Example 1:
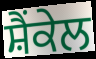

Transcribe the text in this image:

ਸ਼ੈਂਕੇਲ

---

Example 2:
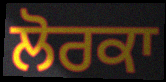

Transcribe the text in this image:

ਲੋਰਕਾ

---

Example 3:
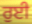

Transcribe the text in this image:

ਰੁਈ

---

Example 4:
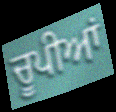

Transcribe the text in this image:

ਚੂਪੀਆਂ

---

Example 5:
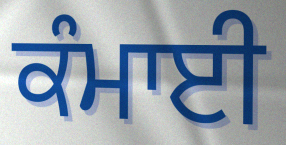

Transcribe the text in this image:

ਕੰਮਾਈ